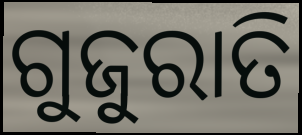
ଗୁଜୁରାତି